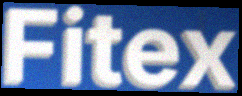
Fitex